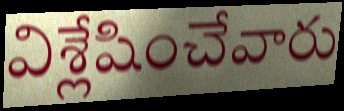
విశ్లేషించేవారు